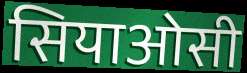
सियाओसी